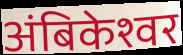
अंबिकेश्वर